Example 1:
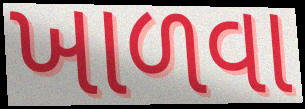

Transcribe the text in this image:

ખાળવા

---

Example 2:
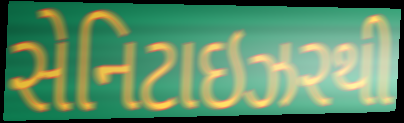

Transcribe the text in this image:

સેનિટાઇઝરથી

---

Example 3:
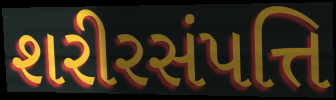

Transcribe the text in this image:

શરીરસંપત્તિ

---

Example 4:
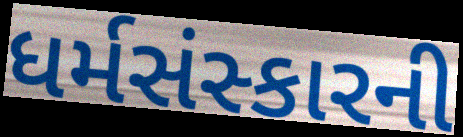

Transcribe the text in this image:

ધર્મસંસ્કારની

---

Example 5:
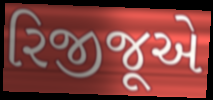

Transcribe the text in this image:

રિજીજૂએ